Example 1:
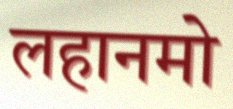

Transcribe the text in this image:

लहानमो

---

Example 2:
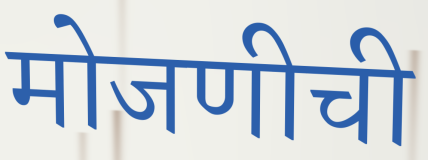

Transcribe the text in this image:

मोजणीची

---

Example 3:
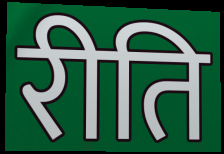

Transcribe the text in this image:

रीति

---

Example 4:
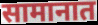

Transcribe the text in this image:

सामानात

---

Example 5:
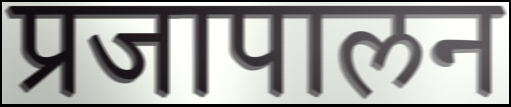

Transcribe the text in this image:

प्रजापालन